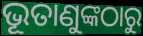
ଭୂତାଣୁଙ୍କଠାରୁ